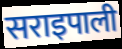
सराइपाली